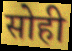
सोही